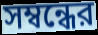
সম্বন্ধের